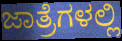
ಜಾತ್ರೆಗಳಲ್ಲಿ